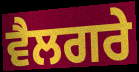
ਵੈਲਗਰੇ